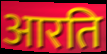
आरति